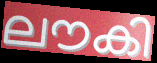
ലൗകി